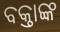
ବକ୍ତାଙ୍କ